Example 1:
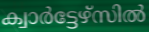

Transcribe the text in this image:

ക്വാർട്ടേഴ്സിൽ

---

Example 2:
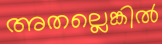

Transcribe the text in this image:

അതല്ലെങ്കിൽ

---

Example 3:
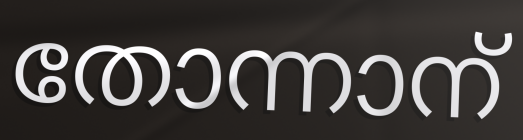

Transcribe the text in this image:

തോന്നാന്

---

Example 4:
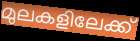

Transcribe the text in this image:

മുലകളിലേക്ക്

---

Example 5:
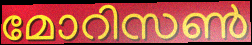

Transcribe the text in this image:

മോറിസൺ